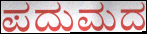
ಪದುಮದ